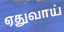
ஏதுவாய்